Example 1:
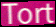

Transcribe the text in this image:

Tort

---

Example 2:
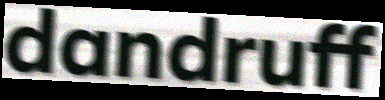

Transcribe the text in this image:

dandruff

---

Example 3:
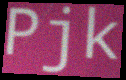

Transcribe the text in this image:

Pjk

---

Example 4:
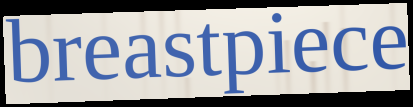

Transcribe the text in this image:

breastpiece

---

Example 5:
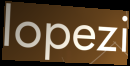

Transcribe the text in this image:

lopezi